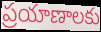
ప్రయాణాలకు